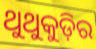
ଥୁଥୁକୁଡ଼ିର